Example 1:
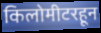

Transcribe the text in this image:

किलोमीटरहून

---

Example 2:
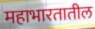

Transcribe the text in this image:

महाभारतातील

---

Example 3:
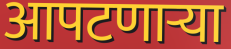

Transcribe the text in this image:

आपटणाऱ्या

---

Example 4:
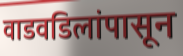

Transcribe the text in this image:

वाडवडिलांपासून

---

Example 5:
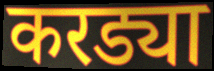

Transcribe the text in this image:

करड्या